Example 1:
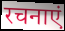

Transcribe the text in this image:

रचनाएं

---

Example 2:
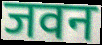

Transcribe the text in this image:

जवन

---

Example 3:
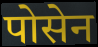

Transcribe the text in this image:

पोसेन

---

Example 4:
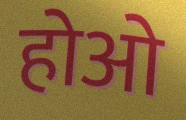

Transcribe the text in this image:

होओ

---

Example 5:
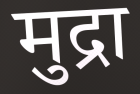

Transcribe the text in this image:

मुद्रा